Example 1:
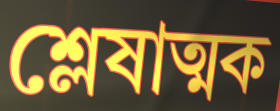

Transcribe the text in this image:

শ্লেষাত্মক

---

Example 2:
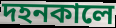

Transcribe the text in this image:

দহনকালে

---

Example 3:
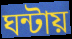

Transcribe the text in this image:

ঘন্টায়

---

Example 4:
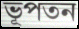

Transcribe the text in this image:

ভূপতন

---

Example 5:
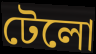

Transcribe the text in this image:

টেলো